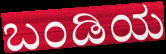
ಬಂಡಿಯ